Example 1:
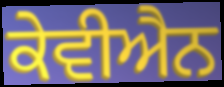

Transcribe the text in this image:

ਕੇਵੀਐਨ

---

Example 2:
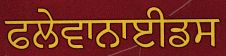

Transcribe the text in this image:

ਫਲੇਵਾਨਾਈਡਸ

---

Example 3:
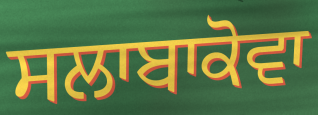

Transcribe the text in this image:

ਸਲਾਬਾਕੋਵਾ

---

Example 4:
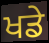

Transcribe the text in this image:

ਖਡੇ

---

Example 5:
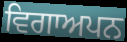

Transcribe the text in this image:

ਵਿਗਾਅਪਨ